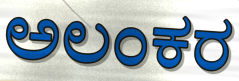
ಅಲಂಕರ